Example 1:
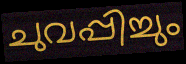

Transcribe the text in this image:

ചുവപ്പിച്ചും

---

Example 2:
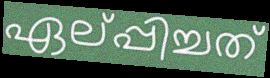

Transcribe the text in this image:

ഏല്പ്പിച്ചത്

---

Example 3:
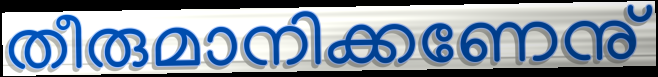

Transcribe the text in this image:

തീരുമാനിക്കണേനു്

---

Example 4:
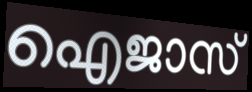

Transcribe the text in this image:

ഐജാസ്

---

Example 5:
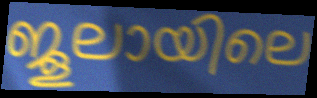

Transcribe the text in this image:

ജൂലായിലെ